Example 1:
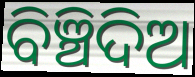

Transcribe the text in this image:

ବିଞ୍ଚିଦିଅ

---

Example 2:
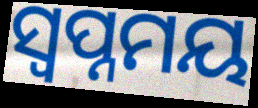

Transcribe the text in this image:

ସ୍ଵପ୍ନମୟ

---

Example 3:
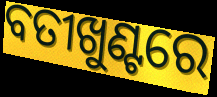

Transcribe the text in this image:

ବତୀଖୁଣ୍ଟରେ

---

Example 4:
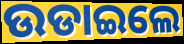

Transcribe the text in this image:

ଉଡାଇଲେ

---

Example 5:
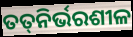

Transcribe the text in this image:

ତତ୍‍ନିର୍ଭରଶୀଳ